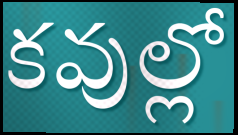
కవుల్లో